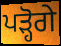
ਪੜ੍ਹੋਗੇ